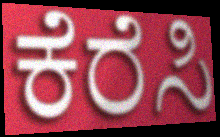
ಕೆರೆಸಿ